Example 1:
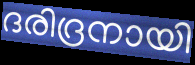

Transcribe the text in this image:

ദരിദ്രനായി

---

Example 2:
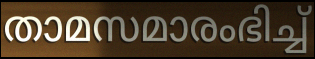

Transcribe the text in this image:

താമസമാരംഭിച്ച്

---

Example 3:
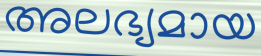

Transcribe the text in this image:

അലഭ്യമായ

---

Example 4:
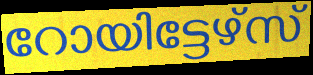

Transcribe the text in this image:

റോയിട്ടേഴ്സ്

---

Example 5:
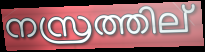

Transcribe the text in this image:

നസ്രത്തില്